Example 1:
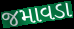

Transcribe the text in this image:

જમાવડા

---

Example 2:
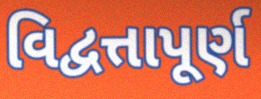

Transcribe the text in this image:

વિદ્વત્તાપૂર્ણ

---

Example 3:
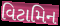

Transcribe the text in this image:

વિટામિન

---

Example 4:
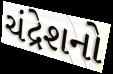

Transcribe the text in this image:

ચંદ્રેશનો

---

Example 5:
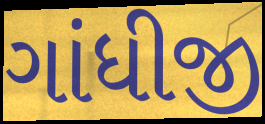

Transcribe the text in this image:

ગાંધીજી